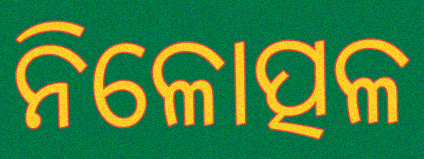
ନିଳୋତ୍ପଳ